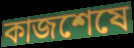
কাজশেষে